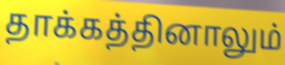
தாக்கத்தினாலும்